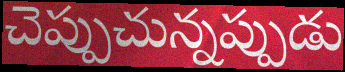
చెప్పుచున్నప్పుడు